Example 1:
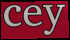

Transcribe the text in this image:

cey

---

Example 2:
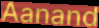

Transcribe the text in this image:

Aanand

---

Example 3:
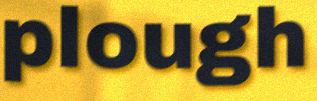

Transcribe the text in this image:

plough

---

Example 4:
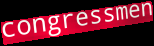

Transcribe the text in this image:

congressmen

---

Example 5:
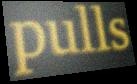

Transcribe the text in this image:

pulls